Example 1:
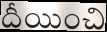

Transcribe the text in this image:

దీయించి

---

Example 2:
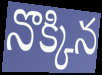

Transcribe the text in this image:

నొక్కిన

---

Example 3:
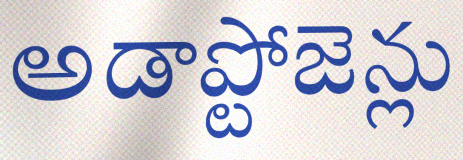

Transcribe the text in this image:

అడాప్టోజెన్లు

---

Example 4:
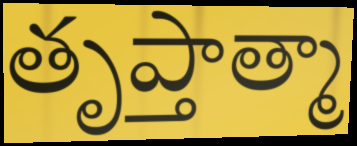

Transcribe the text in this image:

తృప్తాత్మా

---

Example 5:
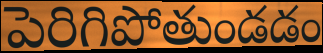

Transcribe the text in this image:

పెరిగిపోతుండడం